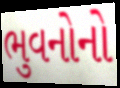
ભુવનોનો